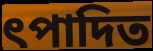
ৎপাদিত